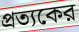
প্রত্যকের